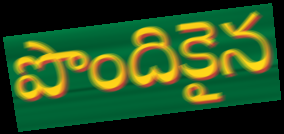
పొందికైన